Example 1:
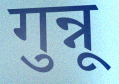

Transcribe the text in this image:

गुन्नू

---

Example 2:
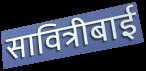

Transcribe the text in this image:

सावित्रीबाई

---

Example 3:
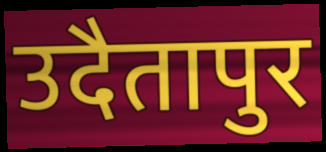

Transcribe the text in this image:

उदैतापुर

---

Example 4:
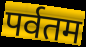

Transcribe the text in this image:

पर्वतम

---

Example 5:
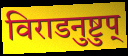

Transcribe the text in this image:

विराडनुष्टुप्